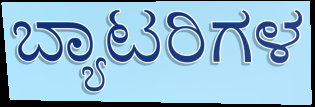
ಬ್ಯಾಟರಿಗಳ